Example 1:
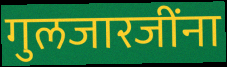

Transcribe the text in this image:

गुलजारजींना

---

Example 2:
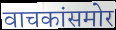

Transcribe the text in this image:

वाचकांसमोर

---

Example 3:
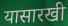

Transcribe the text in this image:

यासारखी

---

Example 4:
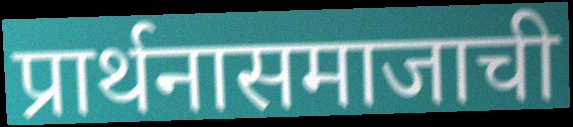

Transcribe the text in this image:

प्रार्थनासमाजाची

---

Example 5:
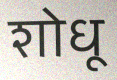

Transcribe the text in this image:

शोधू